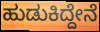
ಹುಡುಕಿದ್ದೇನೆ